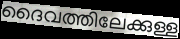
ദൈവത്തിലേക്കുള്ള